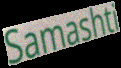
Samashti